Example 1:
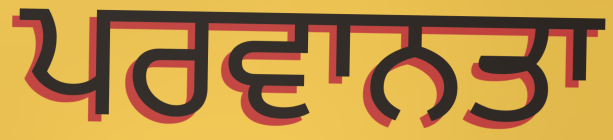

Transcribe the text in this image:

ਪਰਵਾਨਤਾ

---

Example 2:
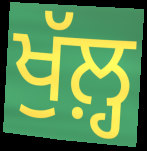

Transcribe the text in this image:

ਖੁੱਲ਼੍ਹ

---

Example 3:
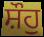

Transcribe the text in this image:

ਸ਼ੌਹੁ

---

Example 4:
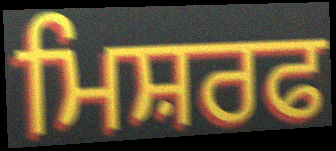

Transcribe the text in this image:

ਮਿਸ਼ਰਫ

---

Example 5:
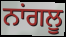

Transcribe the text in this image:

ਨਾਂਗਲੂ